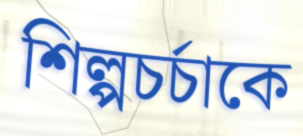
শিল্পচর্চাকে